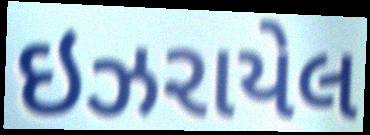
ઇઝરાયેલ